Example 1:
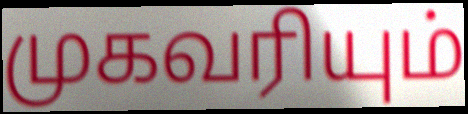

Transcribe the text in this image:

முகவரியும்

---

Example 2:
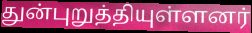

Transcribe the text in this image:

துன்புறுத்தியுள்ளனர்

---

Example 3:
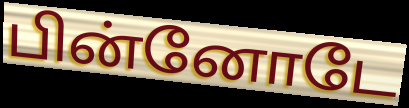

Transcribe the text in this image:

பின்னோடே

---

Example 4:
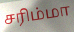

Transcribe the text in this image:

சரிம்மா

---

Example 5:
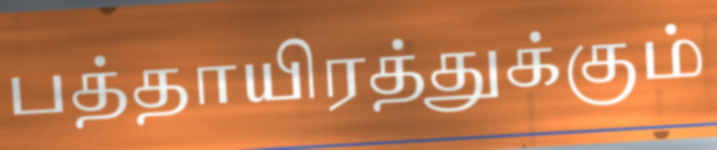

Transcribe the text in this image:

பத்தாயிரத்துக்கும்